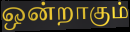
ஒன்றாகும்